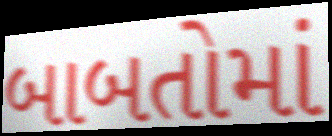
બાબતોમાં